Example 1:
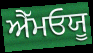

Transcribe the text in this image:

ਐੱਮਓਯੂ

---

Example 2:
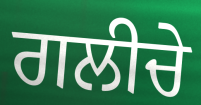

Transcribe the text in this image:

ਗਲੀਚੇ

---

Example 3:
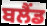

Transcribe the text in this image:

ਬਲੈਂਡ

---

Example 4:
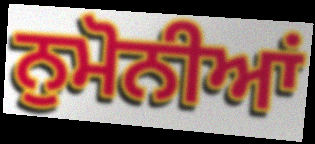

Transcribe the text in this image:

ਨੁਮੋਨੀਆਂ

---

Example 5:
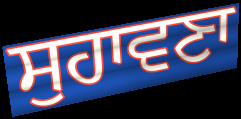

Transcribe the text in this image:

ਸੁਹਾਵਣਾ